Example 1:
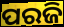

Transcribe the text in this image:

ପରଜି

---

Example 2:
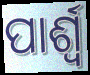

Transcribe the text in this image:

ପାର୍ଶ୍ବ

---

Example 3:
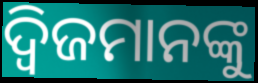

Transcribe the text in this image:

ଦ୍ୱିଜମାନଙ୍କୁ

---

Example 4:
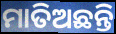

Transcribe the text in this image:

ମାତିଅଛନ୍ତି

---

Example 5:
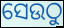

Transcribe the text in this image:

ସେଉଠୁ